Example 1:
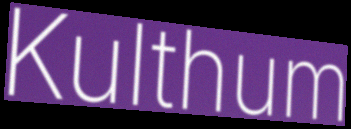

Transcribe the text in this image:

Kulthum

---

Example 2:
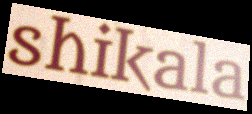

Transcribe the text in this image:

shikala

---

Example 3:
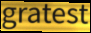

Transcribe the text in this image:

gratest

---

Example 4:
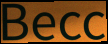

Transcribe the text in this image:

Becc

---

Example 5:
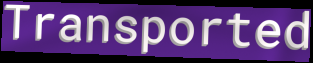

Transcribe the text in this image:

Transported